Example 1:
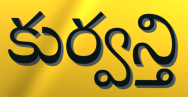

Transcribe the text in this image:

కుర్వన్తి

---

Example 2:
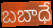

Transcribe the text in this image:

బబాధే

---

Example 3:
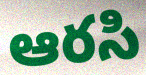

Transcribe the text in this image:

ఆరసి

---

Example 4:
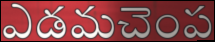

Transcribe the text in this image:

ఎడమచెంప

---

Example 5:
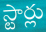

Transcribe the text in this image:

స్టార్లు